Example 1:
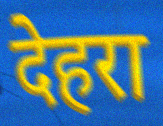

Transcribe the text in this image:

देहरा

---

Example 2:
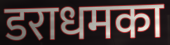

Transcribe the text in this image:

डराधमका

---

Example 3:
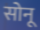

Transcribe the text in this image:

सोनू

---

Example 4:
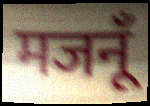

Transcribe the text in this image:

मजनूँ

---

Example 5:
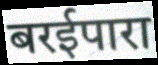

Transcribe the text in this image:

बरईपारा